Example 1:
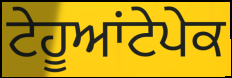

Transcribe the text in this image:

ਟੇਹੂਆਂਟੇਪੇਕ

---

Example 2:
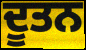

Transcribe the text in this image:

ਦੂਤਨ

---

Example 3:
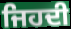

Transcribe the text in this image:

ਜਿਹਦੀ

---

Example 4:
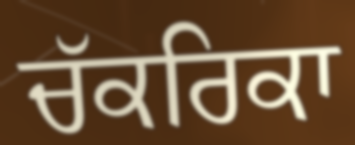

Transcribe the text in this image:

ਚੱਕਰਿਕਾ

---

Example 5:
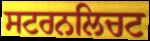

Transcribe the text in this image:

ਸਟਰਨਲਿਚਟ